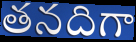
తనదిగా